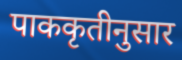
पाककृतीनुसार